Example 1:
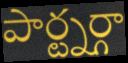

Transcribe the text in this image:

పార్ట్నర్గా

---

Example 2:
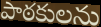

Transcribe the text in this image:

పాఠకులను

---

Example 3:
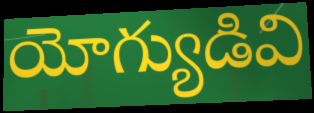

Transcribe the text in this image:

యోగ్యుడివి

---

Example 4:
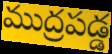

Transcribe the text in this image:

ముద్రపడ్డ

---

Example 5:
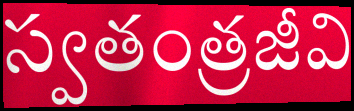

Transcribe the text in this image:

స్వతంత్రజీవి